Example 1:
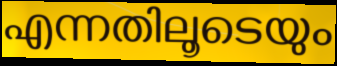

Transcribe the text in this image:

എന്നതിലൂടെയും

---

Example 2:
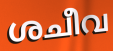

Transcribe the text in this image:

ശചീവ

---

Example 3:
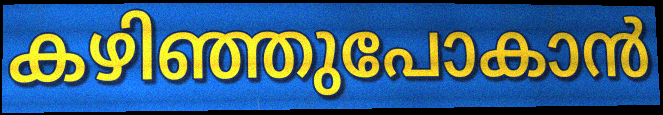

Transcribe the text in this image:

കഴിഞ്ഞുപോകാൻ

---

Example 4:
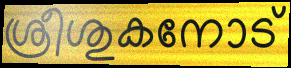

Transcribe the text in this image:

ശ്രീശുകനോട്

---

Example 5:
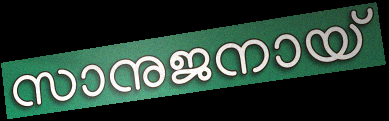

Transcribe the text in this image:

സാനുജനായ്